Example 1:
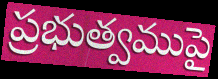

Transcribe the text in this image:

ప్రభుత్వముపై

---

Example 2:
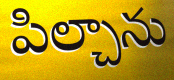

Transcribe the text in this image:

పిల్చాను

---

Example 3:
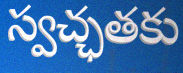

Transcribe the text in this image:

స్వచ్ఛతకు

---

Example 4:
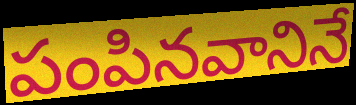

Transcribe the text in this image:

పంపినవానినే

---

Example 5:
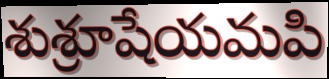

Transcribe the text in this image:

శుశ్రూషేయమపి